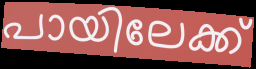
പായിലേക്ക്